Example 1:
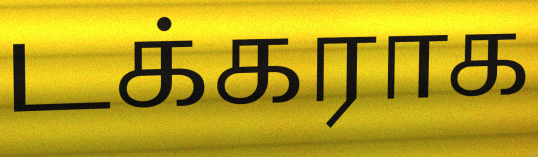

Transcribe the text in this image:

டக்கராக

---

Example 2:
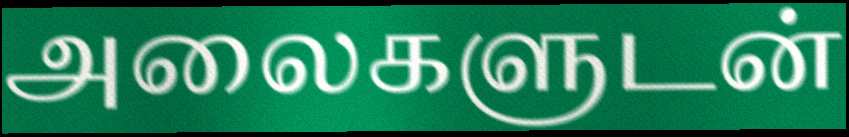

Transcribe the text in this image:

அலைகளுடன்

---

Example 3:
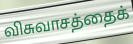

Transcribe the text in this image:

விசுவாசத்தைக்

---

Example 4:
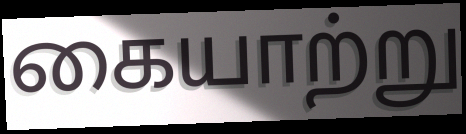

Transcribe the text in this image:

கையாற்று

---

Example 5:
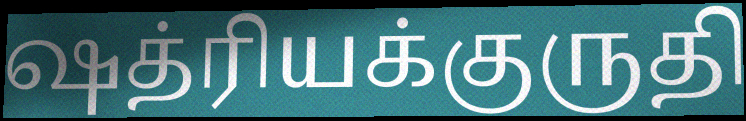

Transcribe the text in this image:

ஷத்ரியக்குருதி